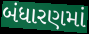
બંધારણમાં